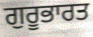
ਗੁਰੂਭਾਰਤ